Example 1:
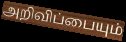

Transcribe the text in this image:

அறிவிப்பையும்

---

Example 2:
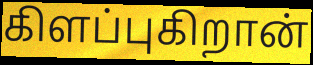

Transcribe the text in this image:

கிளப்புகிறான்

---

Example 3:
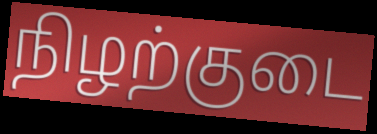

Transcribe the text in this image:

நிழற்குடை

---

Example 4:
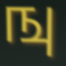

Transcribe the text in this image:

ஙு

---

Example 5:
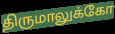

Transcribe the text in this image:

திருமாலுக்கோ